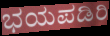
ಭಯಪಡಿರಿ